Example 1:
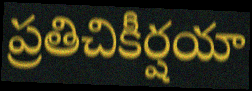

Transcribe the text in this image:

ప్రతిచికీర్షయా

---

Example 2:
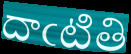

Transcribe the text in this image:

దాఁటితి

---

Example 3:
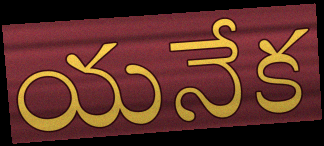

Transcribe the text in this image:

యనేక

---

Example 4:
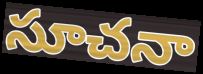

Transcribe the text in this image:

సూచనా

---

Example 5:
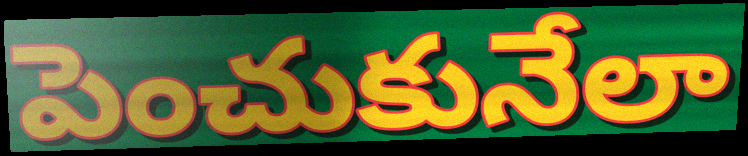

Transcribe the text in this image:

పెంచుకునేలా